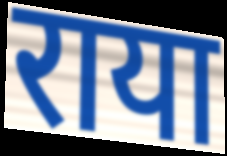
राया